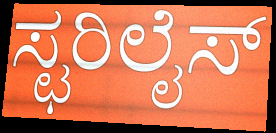
ಸ್ಟರಿಲೈಸ್